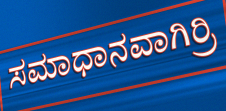
ಸಮಾಧಾನವಾಗಿರ್ರಿ